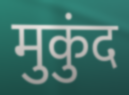
मुकुंद